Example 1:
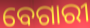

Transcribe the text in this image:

ବେଗାରୀ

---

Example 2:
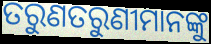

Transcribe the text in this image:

ତରୁଣତରୁଣୀମାନଙ୍କୁ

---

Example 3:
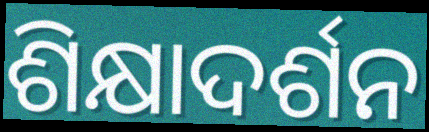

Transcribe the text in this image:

ଶିକ୍ଷାଦର୍ଶନ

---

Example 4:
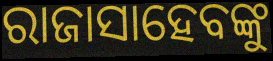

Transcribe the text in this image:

ରାଜାସାହେବଙ୍କୁ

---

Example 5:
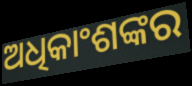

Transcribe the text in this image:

ଅଧିକାଂଶଙ୍କର